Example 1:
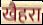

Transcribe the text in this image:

खैहरा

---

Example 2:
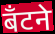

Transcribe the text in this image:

बँटने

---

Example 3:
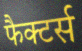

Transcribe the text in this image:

फैक्टर्स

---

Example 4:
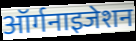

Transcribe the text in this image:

ऑर्गनाइजेशन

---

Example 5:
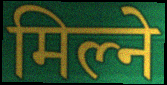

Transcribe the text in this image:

मिल्ने